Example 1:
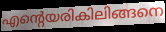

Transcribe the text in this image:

എന്റെയരികിലിങ്ങനെ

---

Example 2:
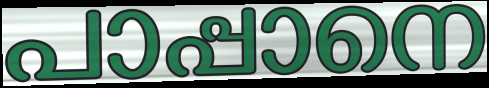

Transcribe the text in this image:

പാപ്പാനെ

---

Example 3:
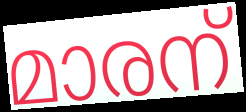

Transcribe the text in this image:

മാരന്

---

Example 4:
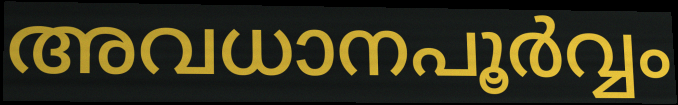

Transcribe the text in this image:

അവധാനപൂർവ്വം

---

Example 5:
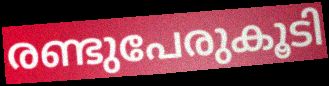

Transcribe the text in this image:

രണ്ടുപേരുകൂടി